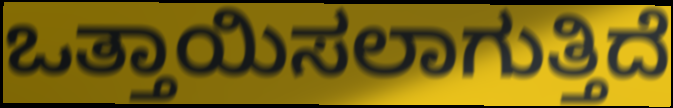
ಒತ್ತಾಯಿಸಲಾಗುತ್ತಿದೆ